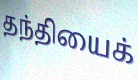
தந்தியைக்